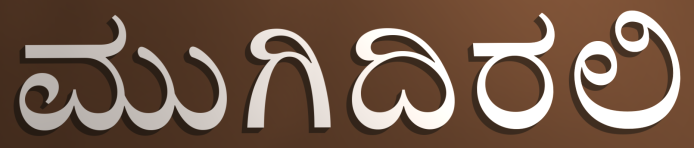
ಮುಗಿದಿರಲಿ